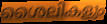
ശൈലികളും